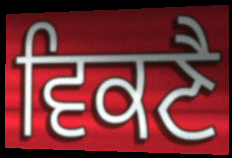
ਵਿਕਣੈ